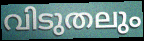
വിടുതലും